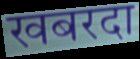
खबरदा